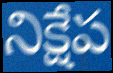
నిక్షేప